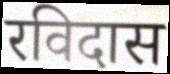
रविदास